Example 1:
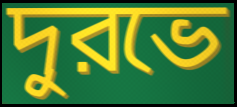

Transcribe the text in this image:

দুরভে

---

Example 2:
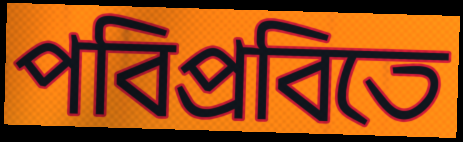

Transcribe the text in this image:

পবিপ্রবিতে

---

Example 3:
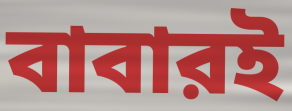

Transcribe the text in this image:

বাবারই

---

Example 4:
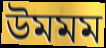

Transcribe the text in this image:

উমমম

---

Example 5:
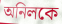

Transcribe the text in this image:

অনিলকে